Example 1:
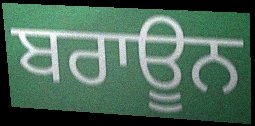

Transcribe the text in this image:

ਬਰਾਊਨ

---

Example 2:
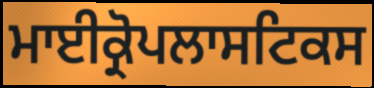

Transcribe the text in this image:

ਮਾਈਕ੍ਰੋਪਲਾਸਟਿਕਸ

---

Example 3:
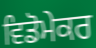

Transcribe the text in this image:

ਵਿਡੋਮੇਕਰ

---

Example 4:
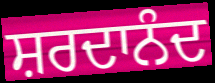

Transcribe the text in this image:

ਸ਼ਰਦਾਨੰਦ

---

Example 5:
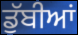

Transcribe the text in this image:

ਡੁੱਬੀਆਂ